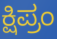
ಕ್ಷಿಪ್ರಂ